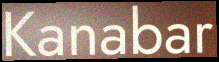
Kanabar